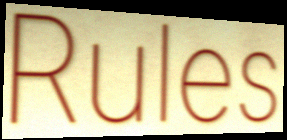
Rules